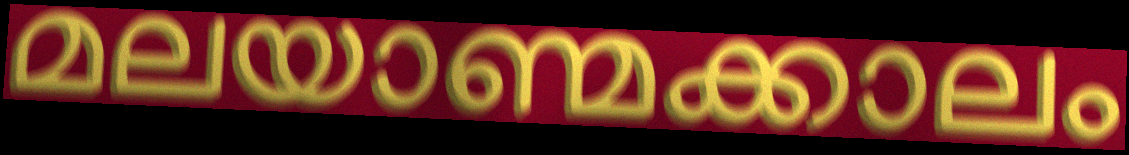
മലയാണ്മക്കാലം